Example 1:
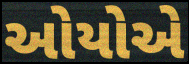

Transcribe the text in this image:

ઓયોએ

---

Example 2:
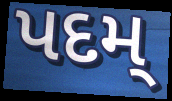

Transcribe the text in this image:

પદમ્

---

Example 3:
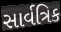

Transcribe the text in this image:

સાર્વત્રિક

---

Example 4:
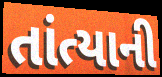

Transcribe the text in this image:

તાંત્યાની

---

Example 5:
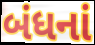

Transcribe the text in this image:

બંધનાં